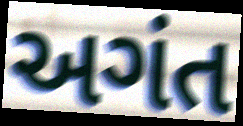
અગંત